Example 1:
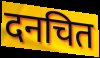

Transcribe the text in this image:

दनचित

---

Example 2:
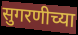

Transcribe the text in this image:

सुगरणीच्या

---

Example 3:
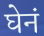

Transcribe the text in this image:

घेनं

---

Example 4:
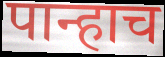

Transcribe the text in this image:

पान्हाच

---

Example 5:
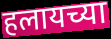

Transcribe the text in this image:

हलायच्या